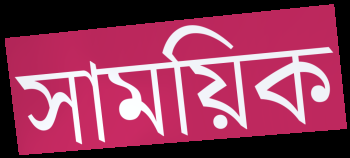
সাময়িক